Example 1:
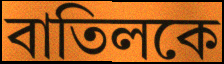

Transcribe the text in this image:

বাতিলকে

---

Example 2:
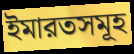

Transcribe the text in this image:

ইমারতসমূহ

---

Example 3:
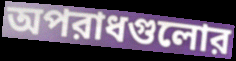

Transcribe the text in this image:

অপরাধগুলোর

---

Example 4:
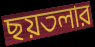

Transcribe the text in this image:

ছয়তলার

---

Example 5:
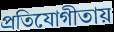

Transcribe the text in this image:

প্রতিযোগীতায়